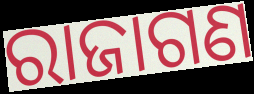
ରାଜାଗଣ